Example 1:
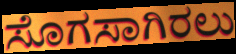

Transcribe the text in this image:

ಸೊಗಸಾಗಿರಲು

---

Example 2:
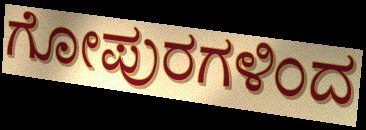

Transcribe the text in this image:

ಗೋಪುರಗಳಿಂದ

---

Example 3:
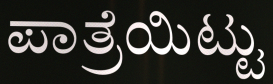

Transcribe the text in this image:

ಪಾತ್ರೆಯಿಟ್ಟು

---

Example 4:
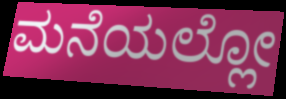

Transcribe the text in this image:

ಮನೆಯಲ್ಲೋ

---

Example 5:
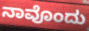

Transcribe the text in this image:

ನಾವೊಂದು